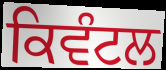
ਕਿਵੰਟਲ